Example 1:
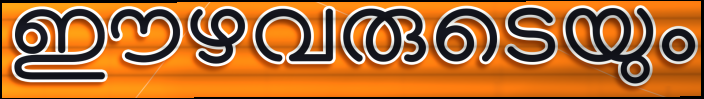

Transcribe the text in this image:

ഈഴവരുടെയും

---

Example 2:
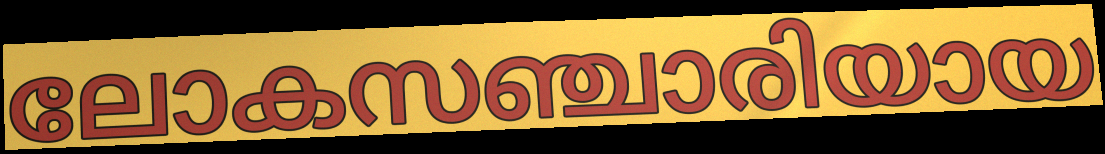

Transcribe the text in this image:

ലോകസഞ്ചാരിയായ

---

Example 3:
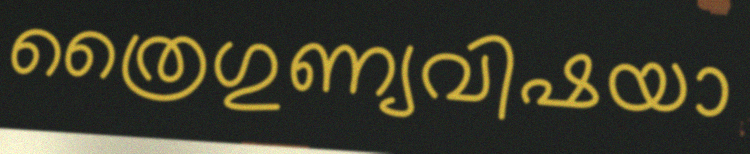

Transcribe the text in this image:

ത്രൈഗുണ്യവിഷയാ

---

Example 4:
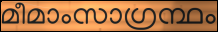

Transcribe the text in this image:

മീമാംസാഗ്രന്ഥം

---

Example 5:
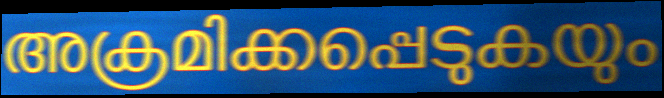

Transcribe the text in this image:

അക്രമിക്കപ്പെടുകയും